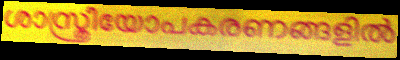
ശാസ്ത്രീയോപകരണങ്ങളിൽ